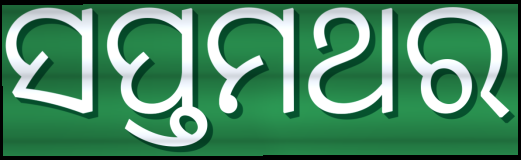
ସପ୍ତମଥର